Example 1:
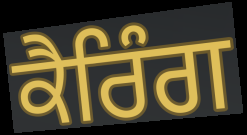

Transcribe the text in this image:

ਕੈਰਿੰਗ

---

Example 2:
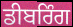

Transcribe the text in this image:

ਡੀਬਰਿੰਗ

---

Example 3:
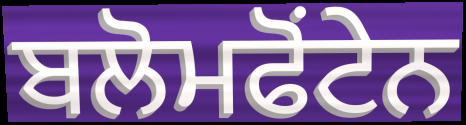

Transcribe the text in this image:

ਬਲੋਮਫੋਂਟੇਨ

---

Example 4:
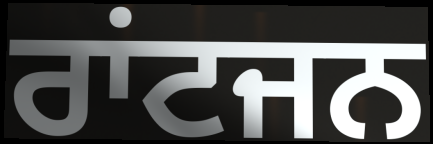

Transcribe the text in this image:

ਰਾਂਟਜਨ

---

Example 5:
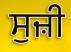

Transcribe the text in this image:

ਸੁਜ਼ੀ